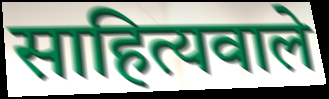
साहित्यवाले